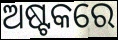
ଅଷ୍ଟକରେ